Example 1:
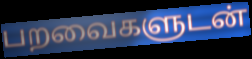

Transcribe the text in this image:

பறவைகளுடன்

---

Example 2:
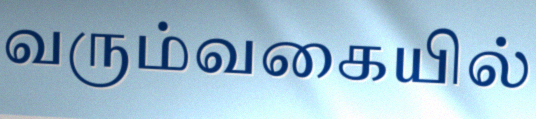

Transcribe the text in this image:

வரும்வகையில்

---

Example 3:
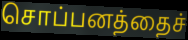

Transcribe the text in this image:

சொப்பனத்தைச்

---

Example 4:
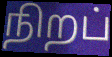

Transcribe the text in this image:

நிறப்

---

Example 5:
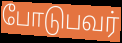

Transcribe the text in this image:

போடுபவர்